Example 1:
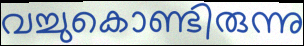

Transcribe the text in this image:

വച്ചുകൊണ്ടിരുന്നു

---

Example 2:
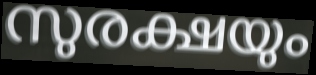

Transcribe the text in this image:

സുരക്ഷയും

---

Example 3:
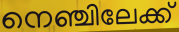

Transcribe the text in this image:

നെഞ്ചിലേക്ക്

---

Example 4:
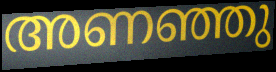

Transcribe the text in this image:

അണഞ്ഞു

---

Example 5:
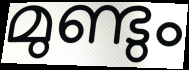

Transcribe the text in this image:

മുണ്ടും